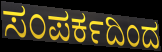
ಸಂಪರ್ಕದಿಂದ